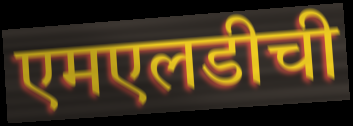
एमएलडीची